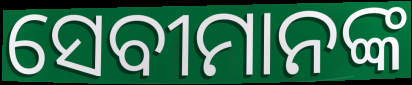
ସେବୀମାନଙ୍କ